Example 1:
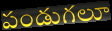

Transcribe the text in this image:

పండుగలూ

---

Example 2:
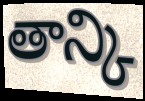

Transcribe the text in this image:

తాన్కి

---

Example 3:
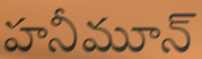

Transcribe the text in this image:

హనీమూన్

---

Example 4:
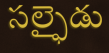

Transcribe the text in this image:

సల్ఫైడు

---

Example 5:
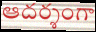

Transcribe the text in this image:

ఆదర్శంగా